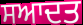
ਸਆਦਤ